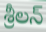
శ్రీలన్